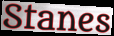
Stanes